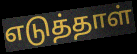
எடுத்தாள்